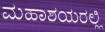
ಮಹಾಶಯರಲ್ಲಿ